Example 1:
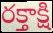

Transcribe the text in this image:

రక్తాక్షి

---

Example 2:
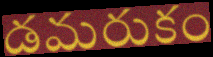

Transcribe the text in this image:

డమరుకం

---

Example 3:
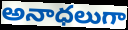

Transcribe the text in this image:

అనాధలుగా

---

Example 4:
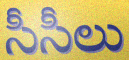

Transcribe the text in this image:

సీసీలు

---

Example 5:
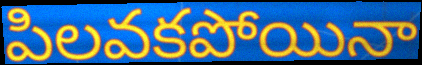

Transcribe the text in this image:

పిలవకపోయినా